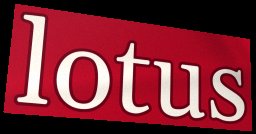
lotus